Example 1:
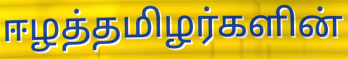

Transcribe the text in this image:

ஈழத்தமிழர்களின்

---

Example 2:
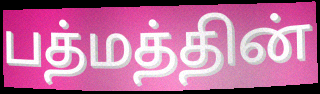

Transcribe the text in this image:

பத்மத்தின்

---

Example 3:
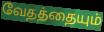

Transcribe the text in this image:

வேதத்தையும்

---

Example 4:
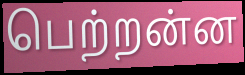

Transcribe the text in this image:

பெற்றன்ன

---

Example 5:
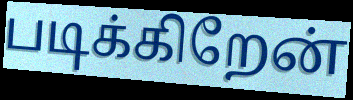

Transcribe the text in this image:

படிக்கிறேன்